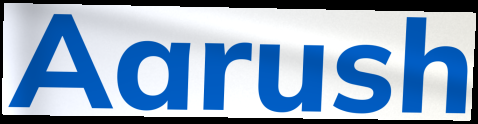
Aarush